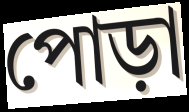
পোড়া